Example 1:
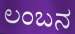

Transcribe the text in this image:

ಲಂಬನ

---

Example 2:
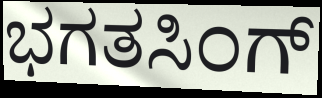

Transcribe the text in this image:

ಭಗತಸಿಂಗ್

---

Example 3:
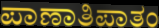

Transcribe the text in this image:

ಪಾಣಾತಿಪಾತಂ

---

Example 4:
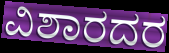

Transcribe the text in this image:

ವಿಶಾರದರ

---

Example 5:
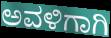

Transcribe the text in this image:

ಅವಳಿಗಾಗಿ